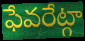
ఫేవరేట్గా